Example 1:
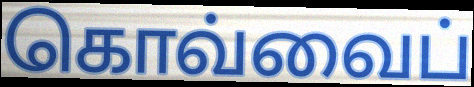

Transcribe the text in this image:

கொவ்வைப்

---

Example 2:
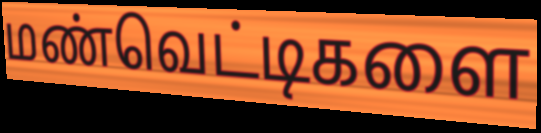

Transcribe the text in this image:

மண்வெட்டிகளை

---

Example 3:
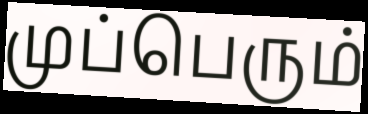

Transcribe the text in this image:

முப்பெரும்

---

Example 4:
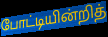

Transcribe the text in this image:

போட்டியின்றித்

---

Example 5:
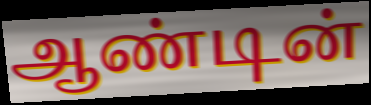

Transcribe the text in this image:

ஆண்டின்